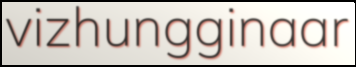
vizhungginaar